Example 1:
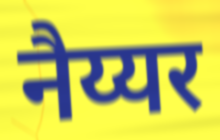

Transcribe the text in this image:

नैय्यर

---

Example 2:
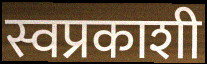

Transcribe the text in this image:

स्वप्रकाशी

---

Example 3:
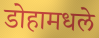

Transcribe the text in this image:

डोहामधले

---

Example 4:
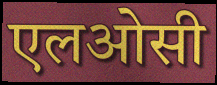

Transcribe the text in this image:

एलओसी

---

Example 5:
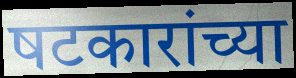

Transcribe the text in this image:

षटकारांच्या